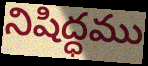
నిషిద్ధము